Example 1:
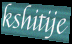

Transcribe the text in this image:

kshitije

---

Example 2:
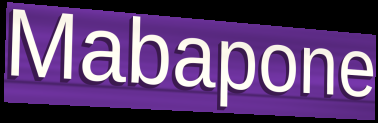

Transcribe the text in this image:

Mabapone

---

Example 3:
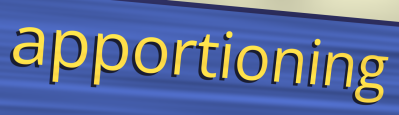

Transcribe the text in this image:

apportioning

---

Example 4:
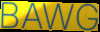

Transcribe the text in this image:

BAWG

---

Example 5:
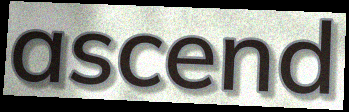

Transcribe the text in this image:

ascend